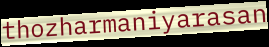
thozharmaniyarasan